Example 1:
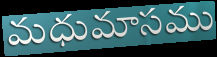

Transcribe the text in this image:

మధుమాసము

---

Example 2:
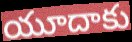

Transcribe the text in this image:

యూదాకు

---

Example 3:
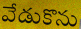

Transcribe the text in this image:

వేడుకొను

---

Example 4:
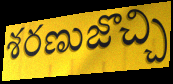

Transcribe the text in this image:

శరణుజొచ్చి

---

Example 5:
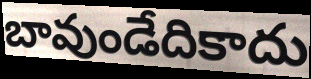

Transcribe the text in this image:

బావుండేదికాదు